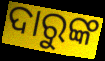
ଦାରୁଙ୍କ